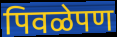
पिवळेपण